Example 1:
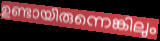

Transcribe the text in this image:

ഉണ്ടായിരുന്നെങ്കിലും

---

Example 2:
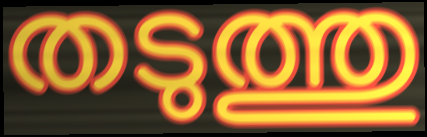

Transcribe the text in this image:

തടുത്തു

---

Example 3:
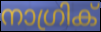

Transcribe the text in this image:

നാഗ്രിക്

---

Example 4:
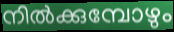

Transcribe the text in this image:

നിൽക്കുമ്പോഴും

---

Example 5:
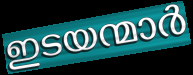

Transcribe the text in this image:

ഇടയന്മാർ